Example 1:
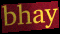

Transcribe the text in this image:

bhay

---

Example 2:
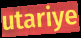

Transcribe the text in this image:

utariye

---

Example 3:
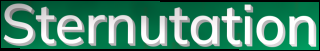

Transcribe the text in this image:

Sternutation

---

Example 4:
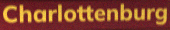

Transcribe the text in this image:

Charlottenburg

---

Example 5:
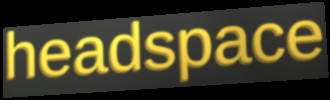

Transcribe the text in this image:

headspace